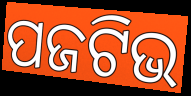
ପଜଟିଭ